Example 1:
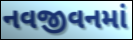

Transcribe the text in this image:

નવજીવનમાં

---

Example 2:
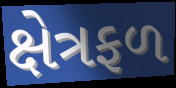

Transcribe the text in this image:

ક્ષેત્રફળ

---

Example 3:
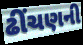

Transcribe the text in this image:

ઢીંચણની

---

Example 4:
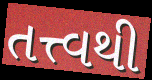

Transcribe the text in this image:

તત્ત્વથી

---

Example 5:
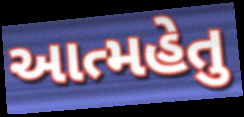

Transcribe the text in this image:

આત્મહેતુ